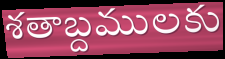
శతాబ్దములకు